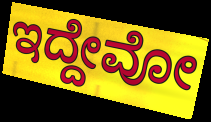
ಇದ್ದೇವೋ